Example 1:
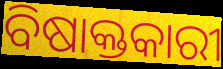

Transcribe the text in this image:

ବିଷାକ୍ତକାରୀ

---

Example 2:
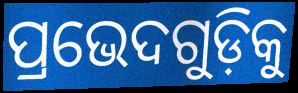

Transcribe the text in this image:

ପ୍ରଭେଦଗୁଡ଼ିକୁ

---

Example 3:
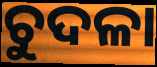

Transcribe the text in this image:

ଚୁଦଳା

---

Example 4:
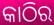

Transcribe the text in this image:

କାଠିର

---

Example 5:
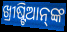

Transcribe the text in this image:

ଖ୍ରୀଷ୍ଟିଆନ୍‌ଙ୍କ